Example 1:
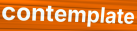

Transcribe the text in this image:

contemplate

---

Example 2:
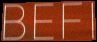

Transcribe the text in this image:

BEFI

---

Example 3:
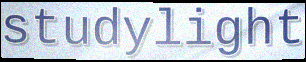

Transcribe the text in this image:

studylight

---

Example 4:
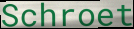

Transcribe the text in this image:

Schroet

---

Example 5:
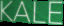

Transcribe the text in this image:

KALE